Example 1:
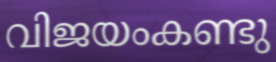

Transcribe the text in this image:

വിജയംകണ്ടു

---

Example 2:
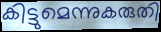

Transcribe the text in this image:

കിട്ടുമെന്നുകരുതി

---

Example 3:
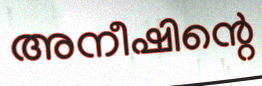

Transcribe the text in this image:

അനീഷിന്റെ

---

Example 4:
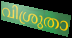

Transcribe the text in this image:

വിശ്രുതാ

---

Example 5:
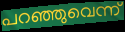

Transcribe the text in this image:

പറഞ്ഞുവെന്ന്